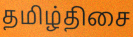
தமிழ்திசை